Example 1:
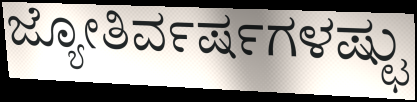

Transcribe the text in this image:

ಜ್ಯೋತಿರ್ವರ್ಷಗಳಷ್ಟು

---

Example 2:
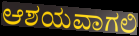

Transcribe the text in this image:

ಆಶಯವಾಗಲಿ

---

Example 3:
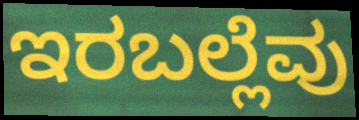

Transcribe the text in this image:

ಇರಬಲ್ಲೆವು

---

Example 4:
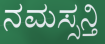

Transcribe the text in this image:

ನಮಸ್ಸನ್ತಿ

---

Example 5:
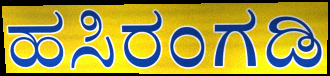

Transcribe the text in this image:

ಹಸಿರಂಗಡಿ